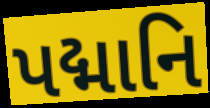
પદ્માનિ